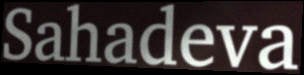
Sahadeva